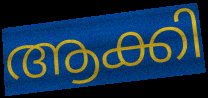
ആക്കി